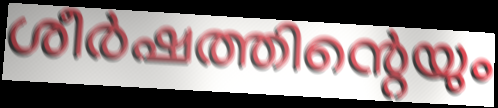
ശീർഷത്തിന്റെയും